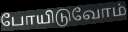
போயிடுவோம்